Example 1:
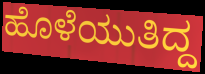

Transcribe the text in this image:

ಹೊಳೆಯುತಿದ್ದ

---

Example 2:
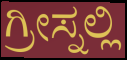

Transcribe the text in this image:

ಗ್ರೀಸ್ನಲ್ಲಿ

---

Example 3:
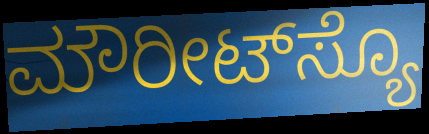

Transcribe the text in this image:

ಮೌರೀಟ್‌ಸ್ಯೊ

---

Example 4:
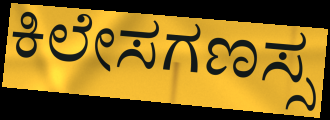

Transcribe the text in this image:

ಕಿಲೇಸಗಣಸ್ಸ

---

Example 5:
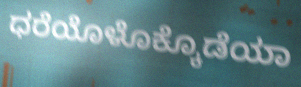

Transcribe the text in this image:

ಧರೆಯೊಳೊಕ್ಕೊಡೆಯಾ